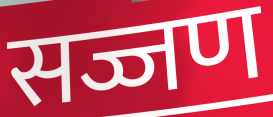
सज्जण